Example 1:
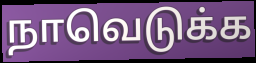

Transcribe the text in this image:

நாவெடுக்க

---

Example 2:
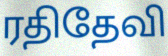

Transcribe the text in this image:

ரதிதேவி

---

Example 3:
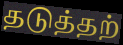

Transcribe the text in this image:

தடுத்தற்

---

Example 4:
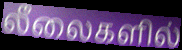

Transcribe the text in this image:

லீலைகளில்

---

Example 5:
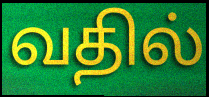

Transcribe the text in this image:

வதில்